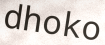
dhoko